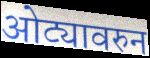
ओट्यावरुन